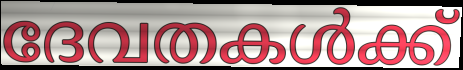
ദേവതകൾക്ക്